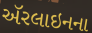
ઍરલાઇનના